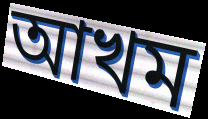
আখম